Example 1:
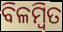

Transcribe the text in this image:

ବିଳମ୍ବିତ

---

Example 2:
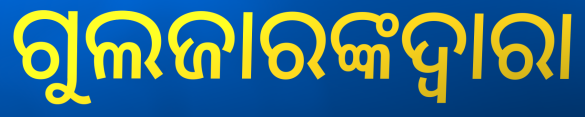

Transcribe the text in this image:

ଗୁଲଜାରଙ୍କଦ୍ୱାରା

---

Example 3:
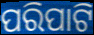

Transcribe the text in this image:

ପରିପାଟି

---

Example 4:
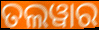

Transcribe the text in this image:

ତଲୱାର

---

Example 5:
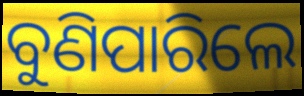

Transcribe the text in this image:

ବୁଣିପାରିଲେ